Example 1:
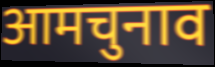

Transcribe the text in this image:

आमचुनाव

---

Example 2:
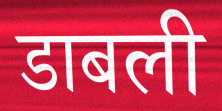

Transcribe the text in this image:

डाबली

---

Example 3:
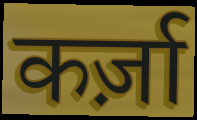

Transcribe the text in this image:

कर्ज़ा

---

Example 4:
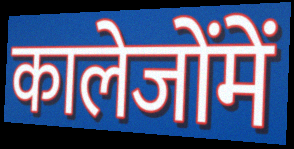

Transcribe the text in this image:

कालेजोंमें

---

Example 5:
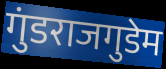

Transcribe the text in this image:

गुंडराजगुडेम